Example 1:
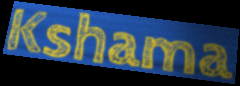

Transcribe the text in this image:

Kshama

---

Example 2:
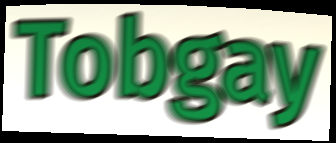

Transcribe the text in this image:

Tobgay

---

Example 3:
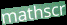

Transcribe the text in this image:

mathscr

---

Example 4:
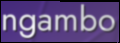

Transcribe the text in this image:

ngambo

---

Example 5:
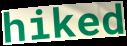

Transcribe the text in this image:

hiked